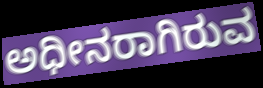
ಅಧೀನರಾಗಿರುವ